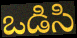
ఒడిసి